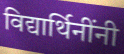
विद्यार्थिनींनी